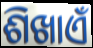
ଶିଖାଏଁ